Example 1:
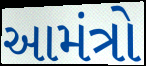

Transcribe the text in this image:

આમંત્રો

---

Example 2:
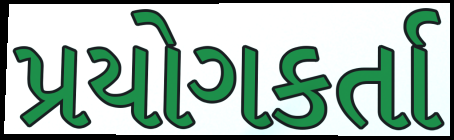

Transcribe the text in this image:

પ્રયોગકર્તા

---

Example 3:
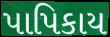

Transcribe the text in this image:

પાપિકાય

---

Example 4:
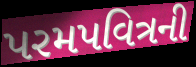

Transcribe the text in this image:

પરમપવિત્રની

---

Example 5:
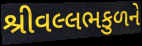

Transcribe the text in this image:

શ્રીવલ્લભકુળને